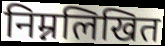
निम्नलिखित